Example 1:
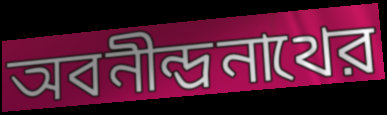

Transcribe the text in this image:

অবনীন্দ্রনাথের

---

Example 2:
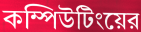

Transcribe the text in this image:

কম্পিউটিংয়ের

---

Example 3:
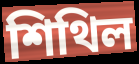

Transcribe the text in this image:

শিথিল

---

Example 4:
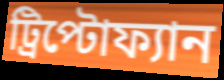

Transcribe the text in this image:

ট্রিপ্টোফ্যান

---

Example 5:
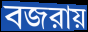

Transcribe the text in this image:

বজরায়